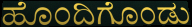
ಹೊಂದಿಗೊಂಡು